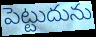
పెట్టుదును